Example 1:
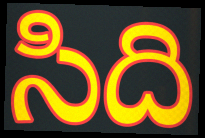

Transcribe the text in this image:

సిది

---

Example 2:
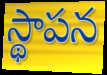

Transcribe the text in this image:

స్థాపన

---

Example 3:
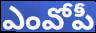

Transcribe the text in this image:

ఎంవోపీ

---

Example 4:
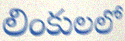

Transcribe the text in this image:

లింకులలో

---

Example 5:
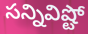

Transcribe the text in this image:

సన్నివిష్టో